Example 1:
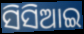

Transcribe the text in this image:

ସିସିଆଇ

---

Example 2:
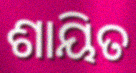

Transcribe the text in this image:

ଶାୟିତ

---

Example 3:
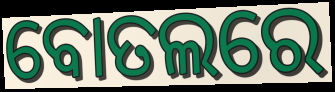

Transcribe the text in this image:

ବୋତଲରେ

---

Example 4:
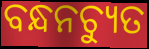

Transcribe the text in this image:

ବନ୍ଧନଚ୍ୟୁତ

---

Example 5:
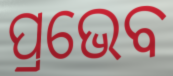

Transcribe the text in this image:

ପ୍ରଭେବ